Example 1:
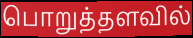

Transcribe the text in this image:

பொறுத்தளவில்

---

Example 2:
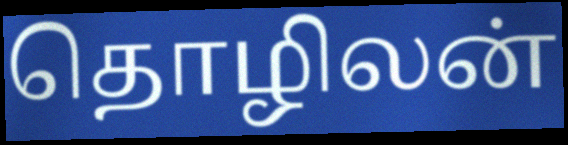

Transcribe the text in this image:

தொழிலன்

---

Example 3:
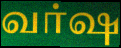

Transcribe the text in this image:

வர்ஷ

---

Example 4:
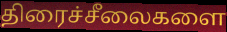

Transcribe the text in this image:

திரைச்சீலைகளை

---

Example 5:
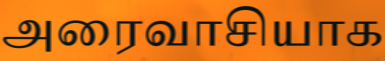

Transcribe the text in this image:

அரைவாசியாக